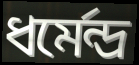
ধর্মেন্দ্র